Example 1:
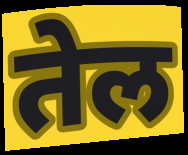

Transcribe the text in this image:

तेल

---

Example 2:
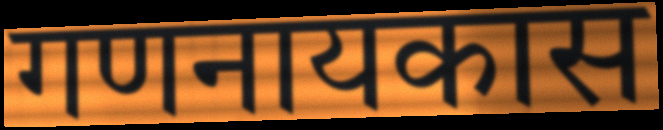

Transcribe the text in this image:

गणनायकास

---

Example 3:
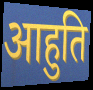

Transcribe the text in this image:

आहुति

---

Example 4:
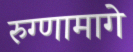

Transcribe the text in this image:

रुग्णामागे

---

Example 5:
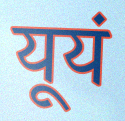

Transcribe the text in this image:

यूयं